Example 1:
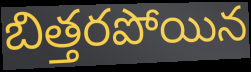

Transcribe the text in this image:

బిత్తరపోయిన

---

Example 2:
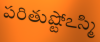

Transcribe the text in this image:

పరితుష్టోఽస్మి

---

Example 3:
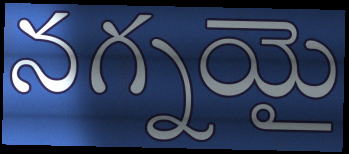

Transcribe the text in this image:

నగ్నయై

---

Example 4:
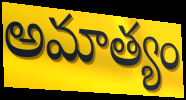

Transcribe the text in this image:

అమాత్యం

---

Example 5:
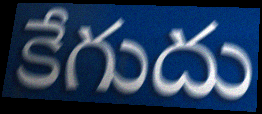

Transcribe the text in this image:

కేగుదు